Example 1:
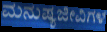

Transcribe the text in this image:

ಮನುಷ್ಯಜೀವಿಗಳ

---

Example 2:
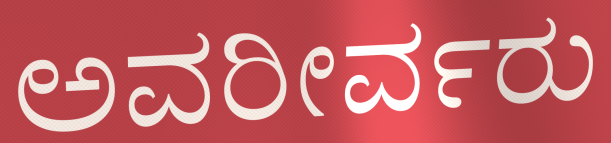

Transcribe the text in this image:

ಅವರೀರ್ವರು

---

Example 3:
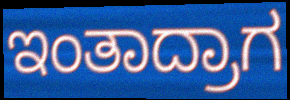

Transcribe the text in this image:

ಇಂತಾದ್ರಾಗ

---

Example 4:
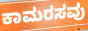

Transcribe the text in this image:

ಕಾಮರಸವು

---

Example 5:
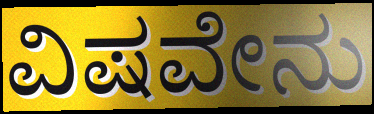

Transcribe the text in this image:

ವಿಷವೇನು